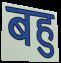
बहु